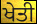
ਖੇਤੀ